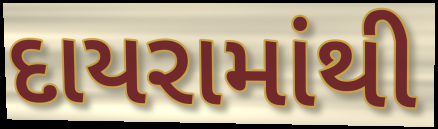
દાયરામાંથી